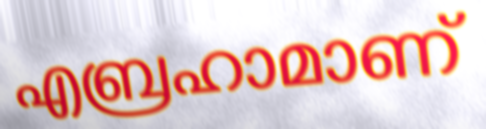
എബ്രഹാമാണ്